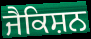
ਜੈਕਿਸ਼ਨ